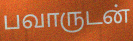
பவாருடன்